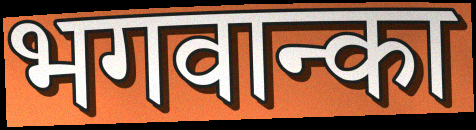
भगवान्का